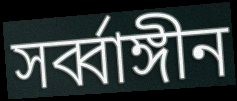
সর্ব্বাঙ্গীন